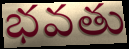
భవతు